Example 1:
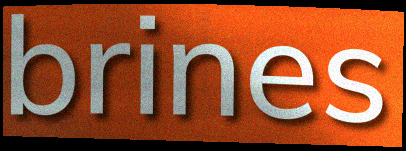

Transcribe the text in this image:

brines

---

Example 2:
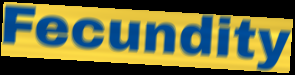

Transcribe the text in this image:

Fecundity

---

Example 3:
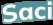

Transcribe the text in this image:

Saci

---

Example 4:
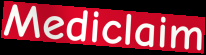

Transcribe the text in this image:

Mediclaim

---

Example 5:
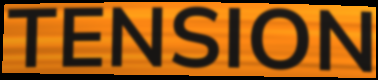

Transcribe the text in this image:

TENSION